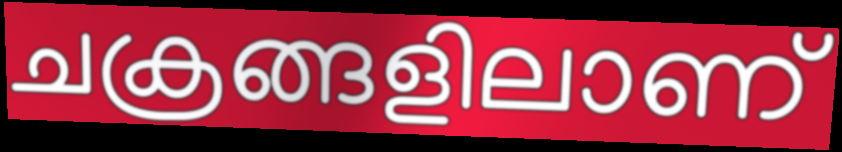
ചക്രങ്ങളിലാണ്